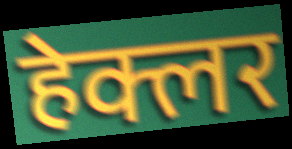
हेक्लर